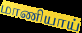
மாணியாய்